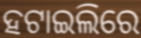
ହଟାଇଲିରେ